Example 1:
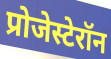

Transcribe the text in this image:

प्रोजेस्टेरॉन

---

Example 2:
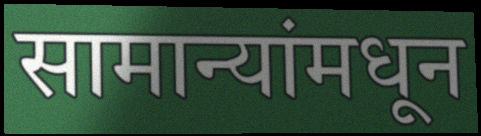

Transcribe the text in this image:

सामान्यांमधून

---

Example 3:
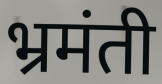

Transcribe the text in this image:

भ्रमंती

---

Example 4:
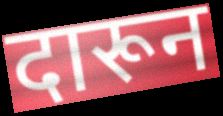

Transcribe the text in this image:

दारून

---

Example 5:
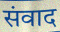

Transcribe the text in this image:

संवाद